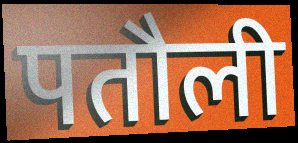
पतौली